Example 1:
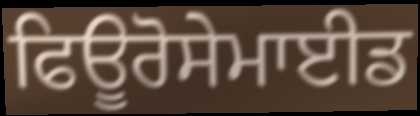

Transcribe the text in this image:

ਫਿਊਰੋਸੇਮਾਈਡ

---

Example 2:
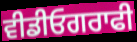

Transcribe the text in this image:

ਵੀਡੀਓਗਰਾਫੀ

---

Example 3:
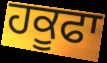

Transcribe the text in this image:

ਹਕੂਫਾ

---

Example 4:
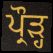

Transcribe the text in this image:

ਪ੍ਰੌੜ੍ਹ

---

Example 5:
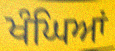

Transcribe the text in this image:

ਖੰਘਿਆਂ